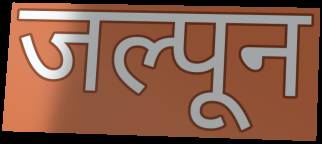
जल्पून